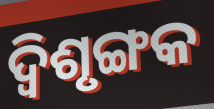
ଦ୍ଵିଶୃଙ୍ଗକ